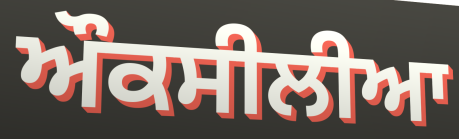
ਔਕਸੀਲੀਆ